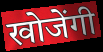
खोजेंगी